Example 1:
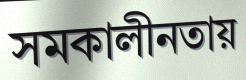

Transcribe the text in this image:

সমকালীনতায়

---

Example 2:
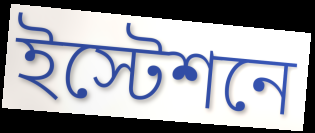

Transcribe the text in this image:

ইস্টেশনে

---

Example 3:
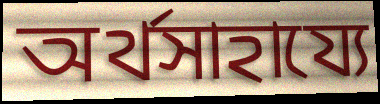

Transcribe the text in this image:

অর্থসাহায্যে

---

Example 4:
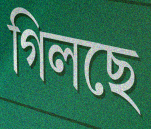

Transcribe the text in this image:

গিলছে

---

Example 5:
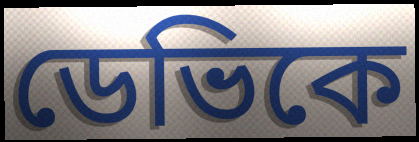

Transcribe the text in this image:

ডেভিকে